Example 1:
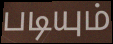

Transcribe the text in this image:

படியும்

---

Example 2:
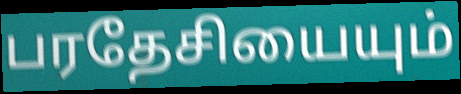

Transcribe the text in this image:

பரதேசியையும்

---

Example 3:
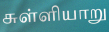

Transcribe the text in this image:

சுள்ளியாறு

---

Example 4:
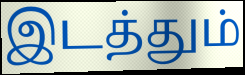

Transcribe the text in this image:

இடத்தும்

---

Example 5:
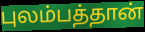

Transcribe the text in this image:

புலம்பத்தான்